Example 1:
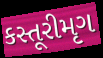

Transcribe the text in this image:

કસ્તૂરીમૃગ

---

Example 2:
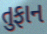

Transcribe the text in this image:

તુફાન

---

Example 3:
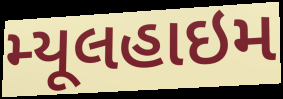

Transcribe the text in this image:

મ્યૂલહાઇમ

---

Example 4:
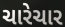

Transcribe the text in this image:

ચારેચાર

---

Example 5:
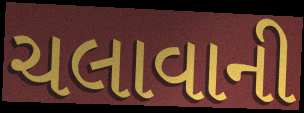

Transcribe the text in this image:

ચલાવાની